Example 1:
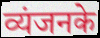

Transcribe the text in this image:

व्यंजनके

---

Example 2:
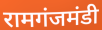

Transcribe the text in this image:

रामगंजमंडी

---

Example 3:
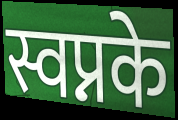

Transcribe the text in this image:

स्वप्नके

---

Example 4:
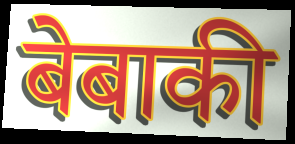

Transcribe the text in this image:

बेबाकी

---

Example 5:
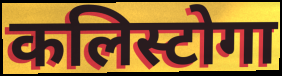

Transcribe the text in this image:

कलिस्टोगा